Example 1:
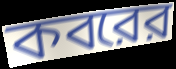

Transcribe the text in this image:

কবরের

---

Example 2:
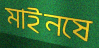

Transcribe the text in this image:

মাইনষে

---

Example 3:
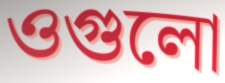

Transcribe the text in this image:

ওগুলো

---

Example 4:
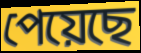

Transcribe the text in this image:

পেয়েছে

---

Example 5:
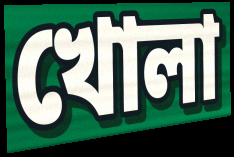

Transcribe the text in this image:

খোলা